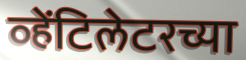
व्हेंटिलेटरच्या